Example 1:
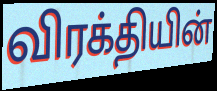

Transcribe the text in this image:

விரக்தியின்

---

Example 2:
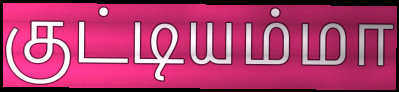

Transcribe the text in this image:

குட்டியம்மா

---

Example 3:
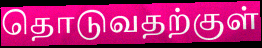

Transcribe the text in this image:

தொடுவதற்குள்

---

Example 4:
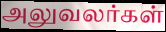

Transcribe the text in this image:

அலுவலர்கள்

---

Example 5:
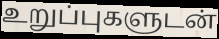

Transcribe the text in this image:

உறுப்புகளுடன்